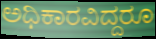
ಅಧಿಕಾರವಿದ್ದರೂ